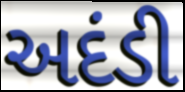
અદંડી